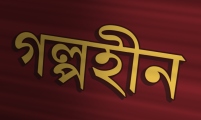
গল্পহীন